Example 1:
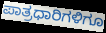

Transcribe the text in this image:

ಪಾತ್ರಧಾರಿಗಳಿಗೂ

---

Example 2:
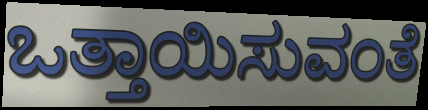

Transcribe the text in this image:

ಒತ್ತಾಯಿಸುವಂತೆ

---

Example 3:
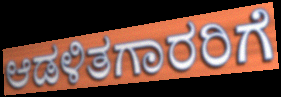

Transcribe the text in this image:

ಆಡಳಿತಗಾರರಿಗೆ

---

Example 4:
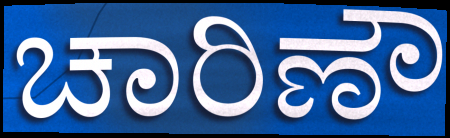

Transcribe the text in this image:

ಚಾರಿಣೌ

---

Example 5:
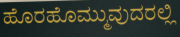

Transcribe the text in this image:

ಹೊರಹೊಮ್ಮುವುದರಲ್ಲಿ